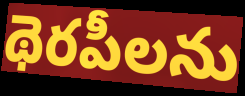
థెరపీలను